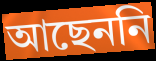
আছেননি